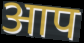
आप